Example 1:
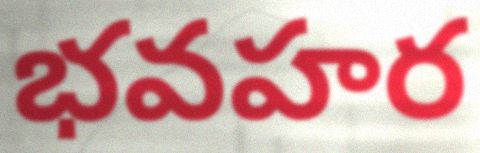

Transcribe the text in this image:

భవహర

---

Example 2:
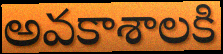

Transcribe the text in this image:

అవకాశాలకి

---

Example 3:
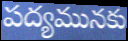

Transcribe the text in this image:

పద్యమునకు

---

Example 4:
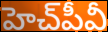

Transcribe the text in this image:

హెచ్‌పీవీ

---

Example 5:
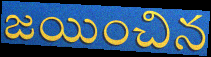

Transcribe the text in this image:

జయించిన